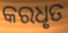
କରଧୃତ